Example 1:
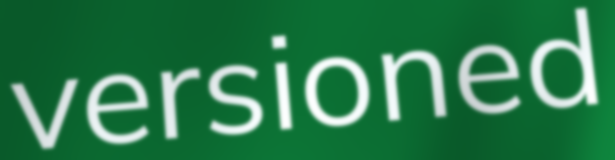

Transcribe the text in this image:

versioned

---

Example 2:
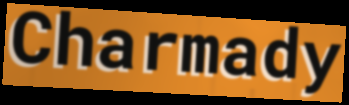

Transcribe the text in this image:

Charmady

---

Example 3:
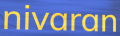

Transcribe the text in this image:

nivaran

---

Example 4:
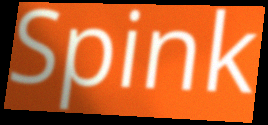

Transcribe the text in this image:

Spink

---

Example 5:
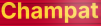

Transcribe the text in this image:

Champat